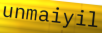
unmaiyil